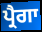
ਪ੍ਰੈਗਾ